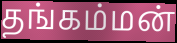
தங்கம்மன்